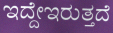
ಇದ್ದೇಇರುತ್ತದೆ